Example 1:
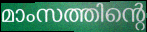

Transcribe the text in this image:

മാംസത്തിന്റെ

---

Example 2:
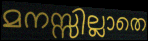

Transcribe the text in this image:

മനസ്സില്ലാതെ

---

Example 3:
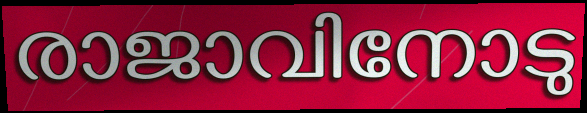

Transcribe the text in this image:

രാജാവിനോടു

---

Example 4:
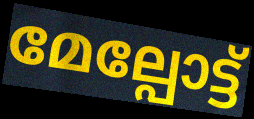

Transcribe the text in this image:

മേല്പോട്ട്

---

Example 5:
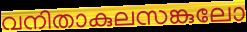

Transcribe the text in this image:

വനിതാകുലസങ്കുലോ